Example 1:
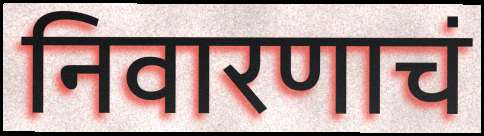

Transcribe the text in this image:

निवारणाचं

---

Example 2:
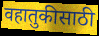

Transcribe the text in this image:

वहातुकीसाठी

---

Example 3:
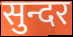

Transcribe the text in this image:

सुन्दर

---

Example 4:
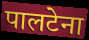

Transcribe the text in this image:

पालटेना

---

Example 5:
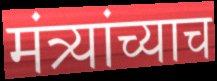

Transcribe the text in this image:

मंत्र्यांच्याच